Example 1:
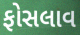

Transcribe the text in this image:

ફોસલાવ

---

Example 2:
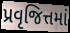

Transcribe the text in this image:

પ્રવૃજિત્તમાં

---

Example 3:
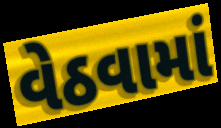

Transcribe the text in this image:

વેઠવામાં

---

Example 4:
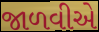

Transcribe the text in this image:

જાળવીએ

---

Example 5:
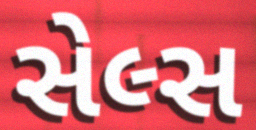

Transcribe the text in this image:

સેલ્સ